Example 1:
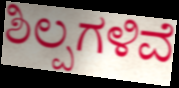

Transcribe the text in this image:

ಶಿಲ್ಪಗಳಿವೆ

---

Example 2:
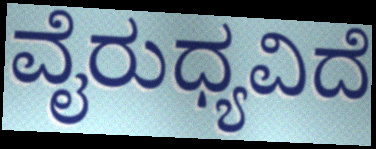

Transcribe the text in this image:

ವೈರುಧ್ಯವಿದೆ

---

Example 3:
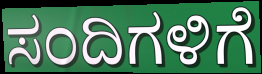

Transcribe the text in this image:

ಸಂದಿಗಳಿಗೆ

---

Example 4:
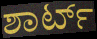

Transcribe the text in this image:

ಶಾರ್ಟ್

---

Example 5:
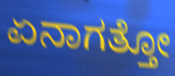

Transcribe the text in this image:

ಏನಾಗತ್ತೋ